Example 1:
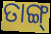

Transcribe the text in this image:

ତାଙ୍ଗ୍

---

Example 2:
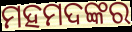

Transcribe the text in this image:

ମହମଦଙ୍କର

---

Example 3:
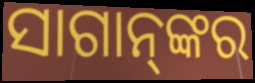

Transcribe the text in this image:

ସାଗାନ୍‌ଙ୍କର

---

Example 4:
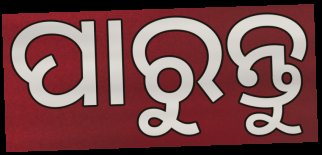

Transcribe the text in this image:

ପାରୁନ୍ତୁ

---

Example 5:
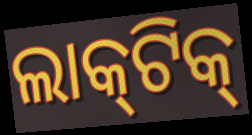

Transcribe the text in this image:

ଲାକ୍‌ଟିକ୍